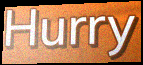
Hurry